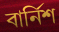
বার্নিশ